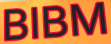
BIBM